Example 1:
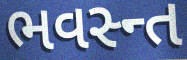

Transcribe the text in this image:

ભવસ્ન્ત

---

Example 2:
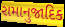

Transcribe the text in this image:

રામાનુજાદિક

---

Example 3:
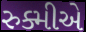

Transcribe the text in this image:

રુક્મીએ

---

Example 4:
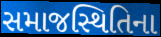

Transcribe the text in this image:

સમાજસ્થિતિના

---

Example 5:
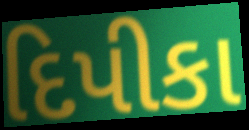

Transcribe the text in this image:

દિપીકા